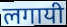
लगायी